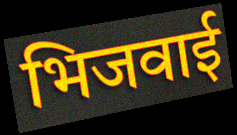
भिजवाई